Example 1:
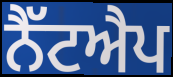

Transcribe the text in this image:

ਨੈੱਟਐਪ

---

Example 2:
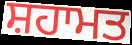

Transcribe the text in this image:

ਸ਼ਹਾਮਤ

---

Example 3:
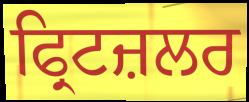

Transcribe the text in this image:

ਫ੍ਰਿਟਜ਼ਲਰ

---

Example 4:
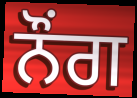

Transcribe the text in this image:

ਨੌਂਗ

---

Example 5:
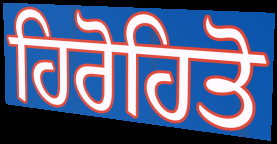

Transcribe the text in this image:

ਹਿਰੋਹਿਤੋ